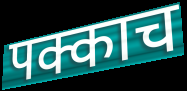
पक्काच